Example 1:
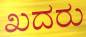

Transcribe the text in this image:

ಖದರು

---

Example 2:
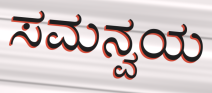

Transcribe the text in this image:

ಸಮನ್ವಯ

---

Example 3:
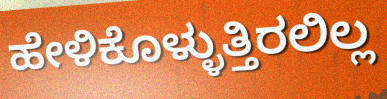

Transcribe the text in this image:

ಹೇಳಿಕೊಳ್ಳುತ್ತಿರಲಿಲ್ಲ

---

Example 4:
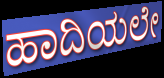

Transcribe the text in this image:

ಹಾದಿಯಲೇ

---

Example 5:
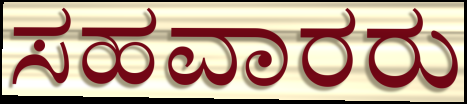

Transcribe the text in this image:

ಸಹವಾರರು